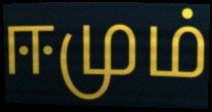
ஈமும்